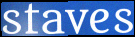
staves